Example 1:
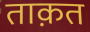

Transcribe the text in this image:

ताक़त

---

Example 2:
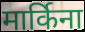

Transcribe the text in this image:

मार्किना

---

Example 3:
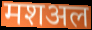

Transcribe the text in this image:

मशअल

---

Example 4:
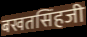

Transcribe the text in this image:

बखतसिंहजी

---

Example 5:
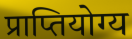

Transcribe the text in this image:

प्राप्तियोग्य